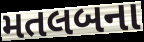
મતલબના